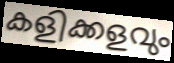
കളിക്കളവും